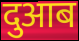
दुआब